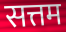
सत्तम